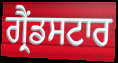
ਗ੍ਰੈਂਡਸਟਾਰ